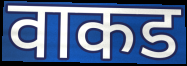
वाकड